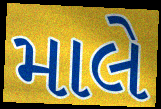
માલે